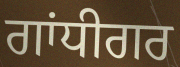
ਗਾਂਧੀਗਰ